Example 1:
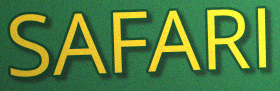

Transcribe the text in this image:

SAFARI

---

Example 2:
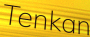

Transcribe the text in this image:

Tenkan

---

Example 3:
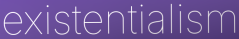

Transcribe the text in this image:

existentialism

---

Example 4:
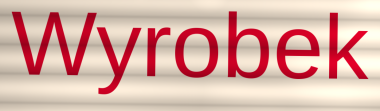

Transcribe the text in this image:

Wyrobek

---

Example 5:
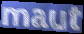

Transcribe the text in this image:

maut